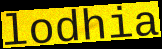
lodhia